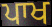
ਪਾਖ